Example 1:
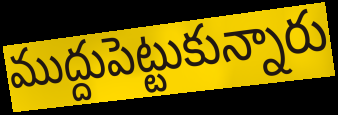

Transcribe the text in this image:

ముద్దుపెట్టుకున్నారు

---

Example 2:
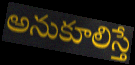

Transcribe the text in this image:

అనుకూలిస్తే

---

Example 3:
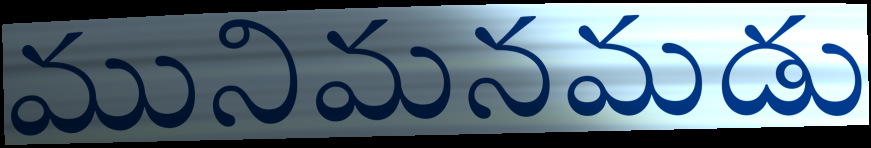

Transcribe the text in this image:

మునిమనమడు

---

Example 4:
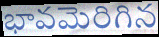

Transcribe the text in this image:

భావమెరిగిన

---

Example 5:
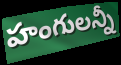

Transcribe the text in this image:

హంగులన్నీ